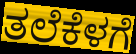
ತಲೆಕೆಳಗೆ